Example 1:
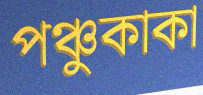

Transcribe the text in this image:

পঞ্চুকাকা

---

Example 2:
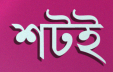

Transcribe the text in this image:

শটই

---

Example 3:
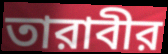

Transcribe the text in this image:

তারাবীর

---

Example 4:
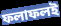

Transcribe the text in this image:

ফলাফলই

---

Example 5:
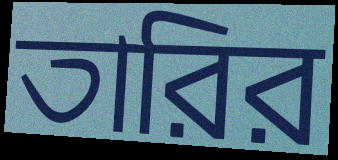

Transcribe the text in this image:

তারির